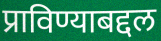
प्राविण्याबद्दल